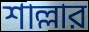
শাল্লার